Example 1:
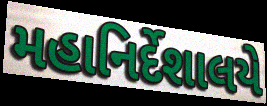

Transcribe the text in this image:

મહાનિર્દેશાલયે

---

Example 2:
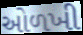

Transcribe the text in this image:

ઓળખી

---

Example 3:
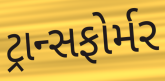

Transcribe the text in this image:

ટ્રાન્સફોર્મર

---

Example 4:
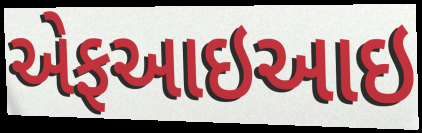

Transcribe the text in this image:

એફઆઇઆઇ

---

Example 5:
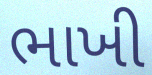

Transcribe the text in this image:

ભાખી